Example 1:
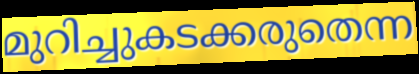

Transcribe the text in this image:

മുറിച്ചുകടക്കരുതെന്ന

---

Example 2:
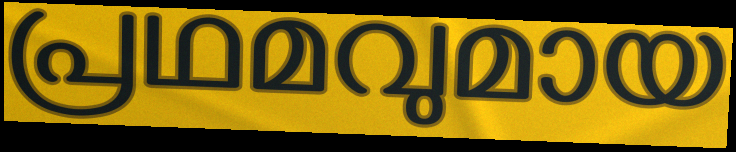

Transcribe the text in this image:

പ്രഥമവുമായ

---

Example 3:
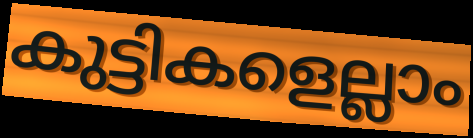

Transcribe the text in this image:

കുട്ടികളെല്ലാം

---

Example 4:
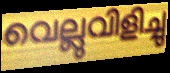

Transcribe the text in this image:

വെല്ലുവിളിച്ചു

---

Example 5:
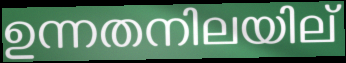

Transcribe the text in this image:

ഉന്നതനിലയില്